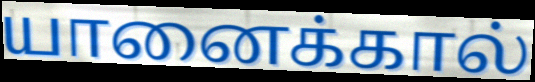
யானைக்கால்